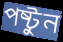
পষ্টুন